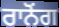
ਰਾਨੋਂਗ